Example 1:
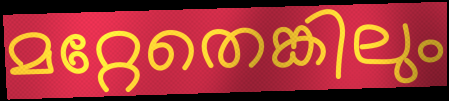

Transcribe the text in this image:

മറ്റേതെങ്കിലും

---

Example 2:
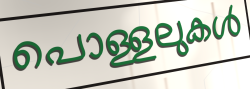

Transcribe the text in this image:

പൊള്ളലുകൾ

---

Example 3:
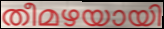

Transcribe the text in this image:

തീമഴയായി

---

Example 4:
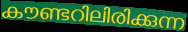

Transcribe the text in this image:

കൗണ്ടറിലിരിക്കുന്ന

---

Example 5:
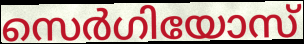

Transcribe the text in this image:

സെർഗിയോസ്